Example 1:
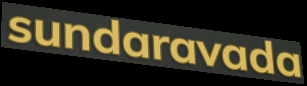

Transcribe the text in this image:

sundaravada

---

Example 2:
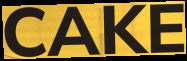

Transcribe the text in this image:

CAKE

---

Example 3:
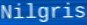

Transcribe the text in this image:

Nilgris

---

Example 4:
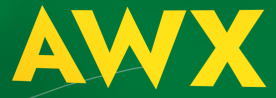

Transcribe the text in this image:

AWX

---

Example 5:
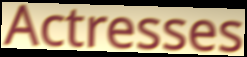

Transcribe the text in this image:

Actresses